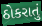
ઠોકરાતું